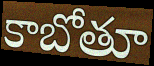
కాబోతూ